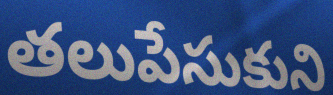
తలుపేసుకుని